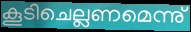
കൂടിചെല്ലണമെന്നു്